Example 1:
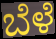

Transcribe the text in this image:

ಬೆಳೆ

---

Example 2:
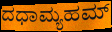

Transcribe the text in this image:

ದಧಾಮ್ಯಹಮ್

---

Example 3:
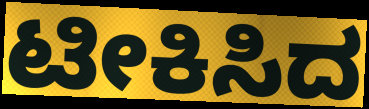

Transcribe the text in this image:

ಟೀಕಿಸಿದ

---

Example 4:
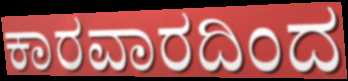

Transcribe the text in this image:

ಕಾರವಾರದಿಂದ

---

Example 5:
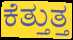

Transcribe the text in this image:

ಕೆತ್ತುತ್ತ